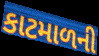
કાટમાળની